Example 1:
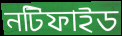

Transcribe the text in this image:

নটিফাইড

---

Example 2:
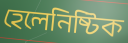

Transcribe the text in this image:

হেলেনিষ্টিক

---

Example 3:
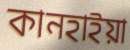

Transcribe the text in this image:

কানহাইয়া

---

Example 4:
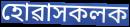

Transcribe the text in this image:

হোৱাসকলক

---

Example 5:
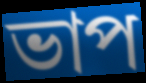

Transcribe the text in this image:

ভাপ